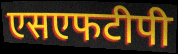
एसएफटीपी